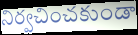
నిర్వచించకుండా